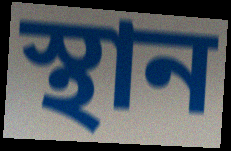
স্থান